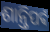
ଶାନ୍ତିପର୍ଵ